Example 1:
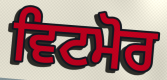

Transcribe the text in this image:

ਵਿਟਮੋਰ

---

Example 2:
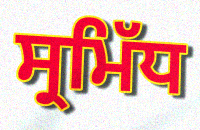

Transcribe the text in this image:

ਸ੍ਰਮਿੱਧ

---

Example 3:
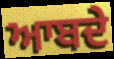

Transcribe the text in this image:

ਆਬਦੇ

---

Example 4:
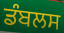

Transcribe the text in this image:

ਡੰਬਲਸ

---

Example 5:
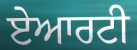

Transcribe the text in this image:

ਏਆਰਟੀ